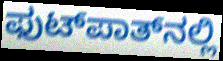
ಫುಟ್‌ಪಾತ್‌ನಲ್ಲಿ